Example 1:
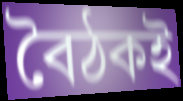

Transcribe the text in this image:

বৈঠকই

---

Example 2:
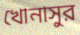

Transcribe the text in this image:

খোনাসুর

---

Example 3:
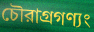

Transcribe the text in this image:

চৌরাগ্রগণ্যং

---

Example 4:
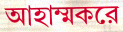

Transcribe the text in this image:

আহাম্মকরে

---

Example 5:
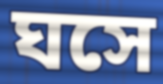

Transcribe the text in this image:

ঘসে